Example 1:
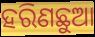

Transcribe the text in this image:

ହରିଣଛୁଆ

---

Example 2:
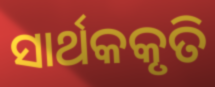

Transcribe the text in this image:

ସାର୍ଥକକୃତି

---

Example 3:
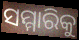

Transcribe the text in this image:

ସମ୍ମାରିକୁ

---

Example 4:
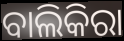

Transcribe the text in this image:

ବାଲିକିରା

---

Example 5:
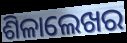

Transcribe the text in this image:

ଶିଳାଲେଖର